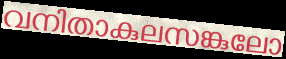
വനിതാകുലസങ്കുലോ